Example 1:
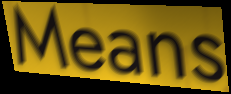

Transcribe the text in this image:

Means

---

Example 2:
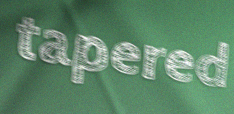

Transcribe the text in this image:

tapered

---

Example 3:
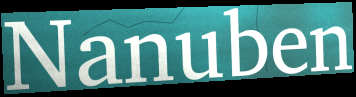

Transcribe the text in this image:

Nanuben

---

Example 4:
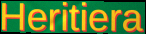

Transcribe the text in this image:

Heritiera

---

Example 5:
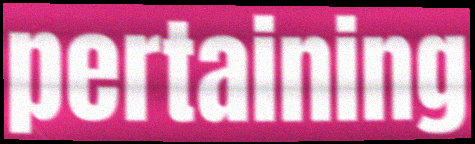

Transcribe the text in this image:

pertaining